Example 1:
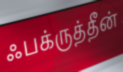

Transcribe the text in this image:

ஃபக்ருத்தீன்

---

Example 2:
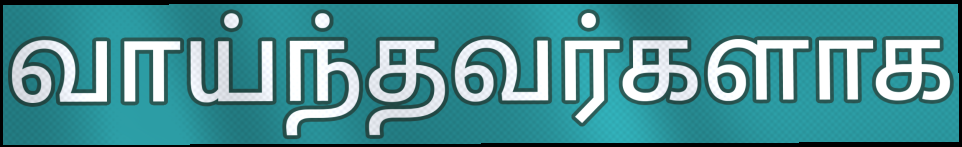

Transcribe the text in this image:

வாய்ந்தவர்களாக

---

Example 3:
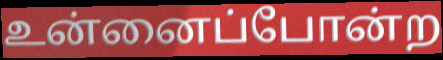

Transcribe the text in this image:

உன்னைப்போன்ற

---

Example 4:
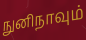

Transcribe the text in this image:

நுனிநாவும்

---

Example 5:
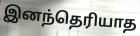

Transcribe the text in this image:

இனந்தெரியாத